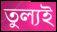
তুল্যই